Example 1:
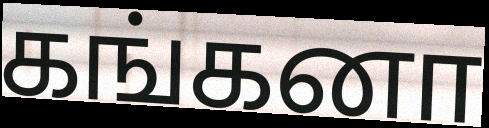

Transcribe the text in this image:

கங்கனா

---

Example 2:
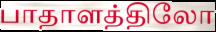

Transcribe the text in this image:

பாதாளத்திலோ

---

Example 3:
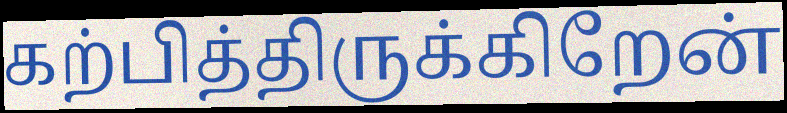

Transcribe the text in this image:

கற்பித்திருக்கிறேன்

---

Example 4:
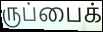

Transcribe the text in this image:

ருப்பைக்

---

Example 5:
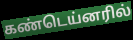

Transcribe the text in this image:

கண்டெய்னரில்